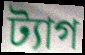
ট্যাগ